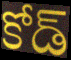
కోడ్